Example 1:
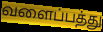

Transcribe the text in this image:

வளைப்பத்து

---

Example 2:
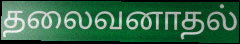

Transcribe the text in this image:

தலைவனாதல்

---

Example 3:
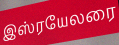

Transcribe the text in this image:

இஸ்ரயேலரை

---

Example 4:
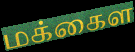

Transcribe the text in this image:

மக்கைள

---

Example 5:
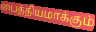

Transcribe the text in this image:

பைத்தியமாக்கும்